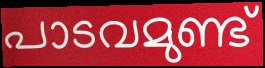
പാടവമുണ്ട്